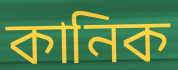
কানিক